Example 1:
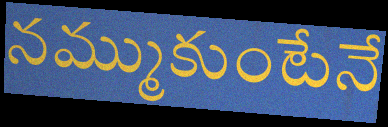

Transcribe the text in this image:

నమ్ముకుంటేనే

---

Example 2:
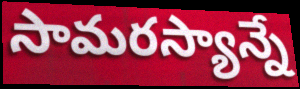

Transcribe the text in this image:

సామరస్యాన్నే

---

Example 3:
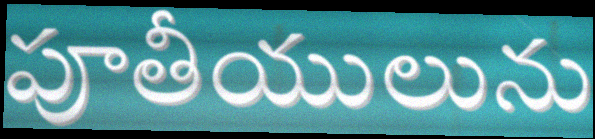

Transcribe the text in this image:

పూతీయులును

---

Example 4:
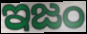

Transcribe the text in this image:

ఇజం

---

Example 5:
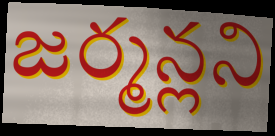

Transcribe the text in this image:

జర్మన్లని